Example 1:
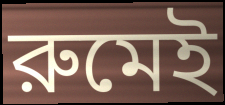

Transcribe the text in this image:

রুমেই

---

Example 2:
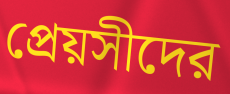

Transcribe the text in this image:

প্রেয়সীদের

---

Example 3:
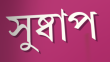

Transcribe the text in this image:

সুষ্বাপ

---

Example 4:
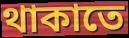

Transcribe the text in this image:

থাকাতে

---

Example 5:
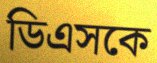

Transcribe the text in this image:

ডিএসকে